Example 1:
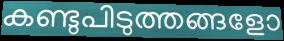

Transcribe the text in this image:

കണ്ടുപിടുത്തങ്ങളോ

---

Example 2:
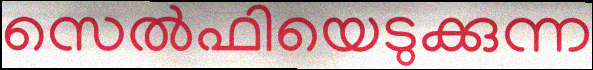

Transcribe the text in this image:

സെൽഫിയെടുക്കുന്ന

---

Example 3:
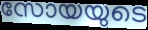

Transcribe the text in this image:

സോയയുടെ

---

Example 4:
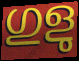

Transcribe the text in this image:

ഗുളു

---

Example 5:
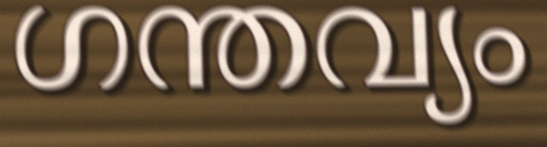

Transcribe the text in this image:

ഗന്തവ്യം